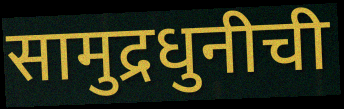
सामुद्रधुनीची